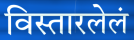
विस्तारलेलं